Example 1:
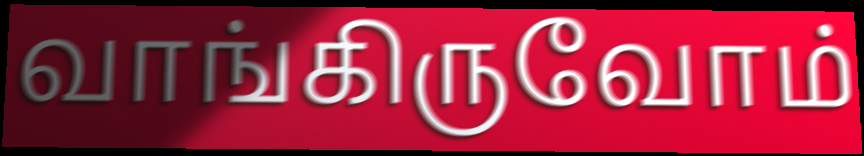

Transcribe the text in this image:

வாங்கிருவோம்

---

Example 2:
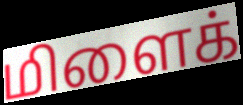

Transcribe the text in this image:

மிளைக்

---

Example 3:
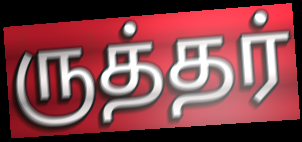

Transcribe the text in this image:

ருத்தர்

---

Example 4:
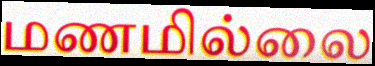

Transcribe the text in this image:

மணமில்லை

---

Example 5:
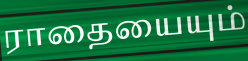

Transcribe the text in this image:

ராதையையும்